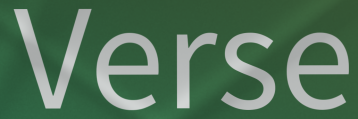
Verse